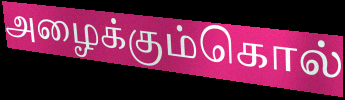
அழைக்கும்கொல்